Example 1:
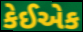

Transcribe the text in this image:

કેઈએક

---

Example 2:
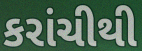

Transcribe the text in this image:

કરાંચીથી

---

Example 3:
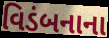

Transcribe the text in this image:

વિડંબનાના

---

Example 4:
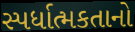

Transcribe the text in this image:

સ્પર્ધાત્મકતાનો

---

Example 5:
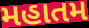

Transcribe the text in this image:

મહાતમ